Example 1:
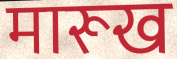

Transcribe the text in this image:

मारूख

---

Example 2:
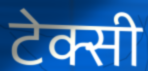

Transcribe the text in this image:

टेक्सी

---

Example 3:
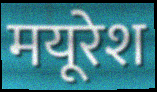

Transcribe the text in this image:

मयूरेश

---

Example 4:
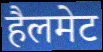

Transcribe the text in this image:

हैलमेट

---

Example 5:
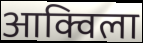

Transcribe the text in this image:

आक्विला